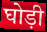
घोड़ी